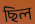
ছিল